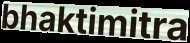
bhaktimitra